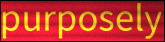
purposely